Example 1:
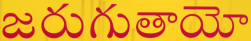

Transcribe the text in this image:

జరుగుతాయో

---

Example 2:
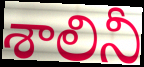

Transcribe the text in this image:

శాలినీ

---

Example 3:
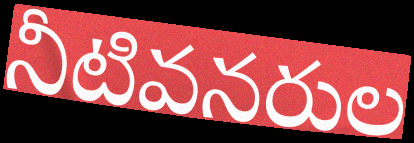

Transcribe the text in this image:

నీటివనరుల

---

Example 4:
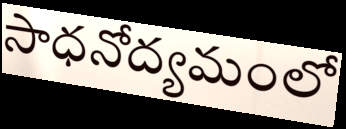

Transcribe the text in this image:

సాధనోద్యమంలో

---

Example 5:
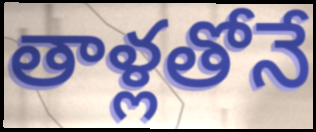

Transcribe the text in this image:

తాళ్లతోనే